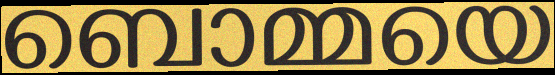
ബൊമ്മയെ